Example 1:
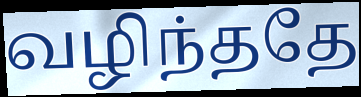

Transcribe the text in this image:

வழிந்ததே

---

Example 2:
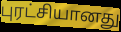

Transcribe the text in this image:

புரட்சியானது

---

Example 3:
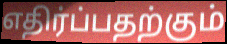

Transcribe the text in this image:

எதிர்ப்பதற்கும்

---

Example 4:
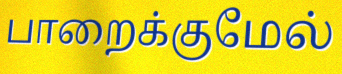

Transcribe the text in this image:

பாறைக்குமேல்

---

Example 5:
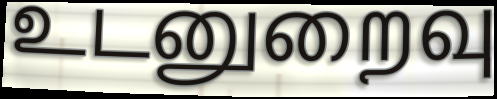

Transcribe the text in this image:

உடனுறைவு